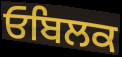
ਓਬਿਲਕ